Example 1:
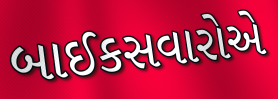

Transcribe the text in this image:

બાઈકસવારોએ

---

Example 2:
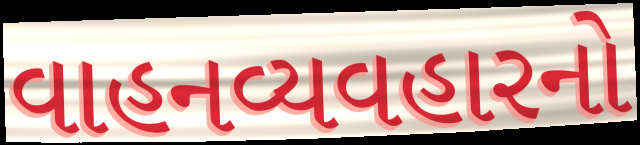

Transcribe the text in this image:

વાહનવ્યવહારનો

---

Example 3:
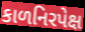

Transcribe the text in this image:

કાળનિરપેક્ષ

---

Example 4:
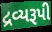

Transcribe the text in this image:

દ્રવ્યરૂપી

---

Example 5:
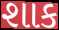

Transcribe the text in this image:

શાક